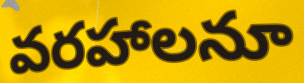
వరహాలనూ